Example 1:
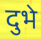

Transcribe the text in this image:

दुभे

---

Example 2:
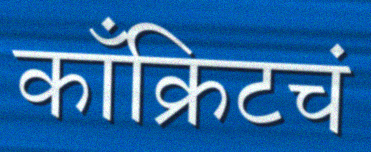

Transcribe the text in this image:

काँक्रिटचं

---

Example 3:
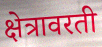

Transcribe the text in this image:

क्षेत्रावरती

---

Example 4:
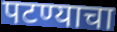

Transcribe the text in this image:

पटण्याचा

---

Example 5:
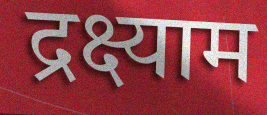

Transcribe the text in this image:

द्रक्ष्याम